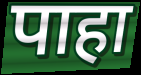
पाहा